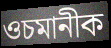
ওচমানীক